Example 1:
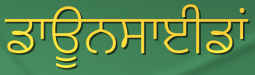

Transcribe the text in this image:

ਡਾਊਨਸਾਈਡਾਂ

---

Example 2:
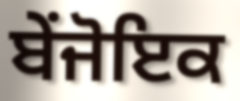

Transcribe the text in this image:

ਬੇਂਜੋਇਕ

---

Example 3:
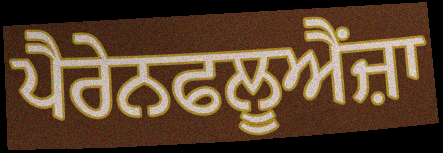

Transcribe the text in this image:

ਪੈਰੇਨਫਲੂਐਂਜ਼ਾ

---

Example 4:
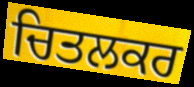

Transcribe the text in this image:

ਚਿਤਲਕਰ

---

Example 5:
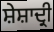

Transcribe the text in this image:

ਸ਼ੇਸ਼ਾਦ੍ਰੀ